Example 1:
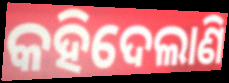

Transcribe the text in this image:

କହିଦେଲାଣି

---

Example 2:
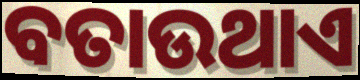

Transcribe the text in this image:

ବତାଉଥାଏ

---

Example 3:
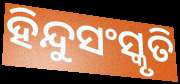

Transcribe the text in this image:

ହିନ୍ଦୁସଂସ୍କୃତି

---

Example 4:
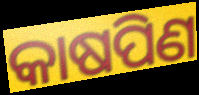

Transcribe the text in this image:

କାଷପିଣ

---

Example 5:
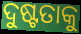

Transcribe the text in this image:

ଦୁଷ୍ଟତାକୁ